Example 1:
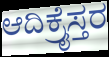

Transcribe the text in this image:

ಆದಿಕ್ರೈಸ್ತರ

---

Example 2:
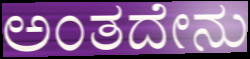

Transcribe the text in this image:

ಅಂತದೇನು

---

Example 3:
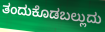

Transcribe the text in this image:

ತಂದುಕೊಡಬಲ್ಲುದು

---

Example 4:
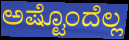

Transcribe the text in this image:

ಅಷ್ಟೊಂದೆಲ್ಲ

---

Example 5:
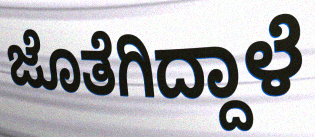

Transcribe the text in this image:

ಜೊತೆಗಿದ್ದಾಳೆ